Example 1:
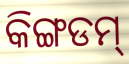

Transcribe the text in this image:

କିଙ୍ଗଡମ୍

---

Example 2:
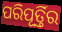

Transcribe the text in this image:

ପରିପୂର୍ତ୍ତିର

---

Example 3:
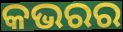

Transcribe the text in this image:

କଭରର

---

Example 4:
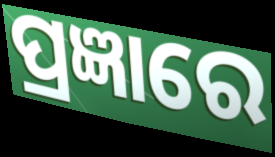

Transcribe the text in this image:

ପ୍ରଜ୍ଞାରେ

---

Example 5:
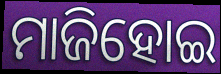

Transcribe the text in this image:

ମାଜିହୋଇ